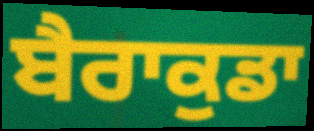
ਬੈਰਾਕੁਡਾ